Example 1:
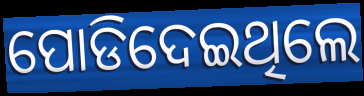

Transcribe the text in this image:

ପୋଡିଦେଇଥିଲେ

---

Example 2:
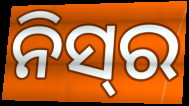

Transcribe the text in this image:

ନିସ୍‌ର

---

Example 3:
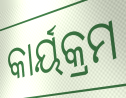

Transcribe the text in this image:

କାର୍ୟକ୍ରମ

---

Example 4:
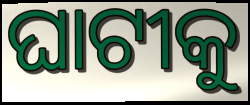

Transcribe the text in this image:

ଘାଟୀକୁ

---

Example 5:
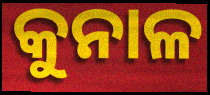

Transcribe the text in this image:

କୁନାଳ